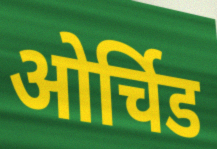
ओर्चिड